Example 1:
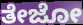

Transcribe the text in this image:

ತೇಜೋ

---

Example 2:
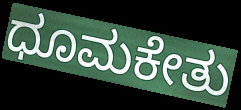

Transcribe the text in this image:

ಧೂಮಕೇತು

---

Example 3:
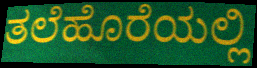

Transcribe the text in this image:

ತಲೆಹೊರೆಯಲ್ಲಿ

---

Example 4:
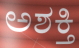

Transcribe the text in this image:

ಅಶಕ್ತಿ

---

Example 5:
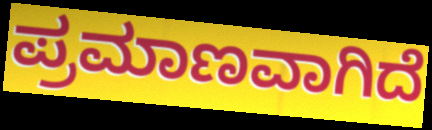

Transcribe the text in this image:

ಪ್ರಮಾಣವಾಗಿದೆ